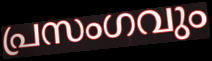
പ്രസംഗവും